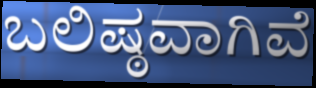
ಬಲಿಷ್ಠವಾಗಿವೆ